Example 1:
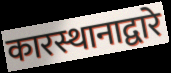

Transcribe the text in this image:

कारस्थानाद्वारे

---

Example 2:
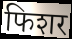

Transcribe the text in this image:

फिशर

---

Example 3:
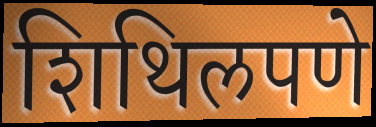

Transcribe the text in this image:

शिथिलपणे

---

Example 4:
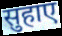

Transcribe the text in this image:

सुहाए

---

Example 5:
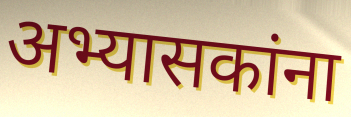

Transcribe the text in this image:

अभ्यासकांना